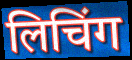
लिचिंग